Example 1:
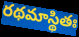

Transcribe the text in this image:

రథమాస్థితః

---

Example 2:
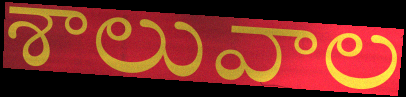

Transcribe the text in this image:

శాలువాల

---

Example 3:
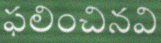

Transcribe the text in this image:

ఫలించినవి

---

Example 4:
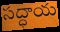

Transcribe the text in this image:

సద్ధాయ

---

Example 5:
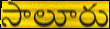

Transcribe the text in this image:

సాలూరు